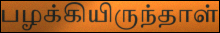
பழக்கியிருந்தாள்